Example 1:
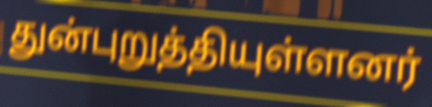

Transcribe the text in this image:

துன்புறுத்தியுள்ளனர்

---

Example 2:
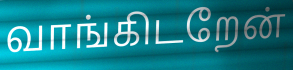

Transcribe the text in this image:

வாங்கிடறேன்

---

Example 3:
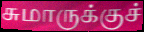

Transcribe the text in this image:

சுமாருக்குச்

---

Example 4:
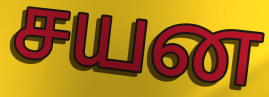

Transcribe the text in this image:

சயன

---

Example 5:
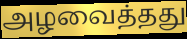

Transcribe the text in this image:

அழவைத்தது